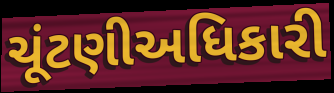
ચૂંટણીઅધિકારી